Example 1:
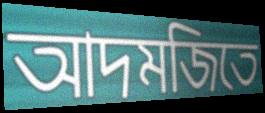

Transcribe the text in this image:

আদমজিতে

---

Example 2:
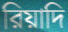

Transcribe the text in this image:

রিয়াদি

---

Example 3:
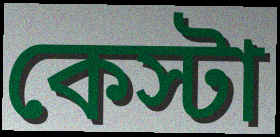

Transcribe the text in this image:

কেস্টা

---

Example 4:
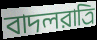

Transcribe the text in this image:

বাদলরাত্রি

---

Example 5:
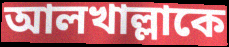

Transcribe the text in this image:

আলখাল্লাকে